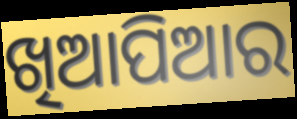
ଖିଆପିଆର